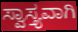
ಸ್ವಾಸ್ತ್ಯವಾಗಿ